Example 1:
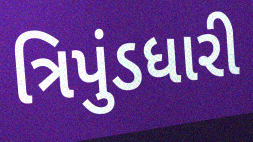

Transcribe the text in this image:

ત્રિપુંડધારી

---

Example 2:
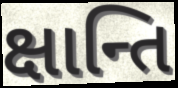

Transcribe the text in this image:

ક્ષાન્તિ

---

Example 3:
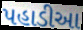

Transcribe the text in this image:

પહાડીઆ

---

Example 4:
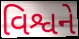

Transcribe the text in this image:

વિશ્વને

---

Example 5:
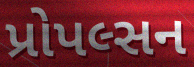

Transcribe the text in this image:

પ્રોપલ્સન